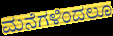
ಮನೆಗಳಿಂದಲೂ